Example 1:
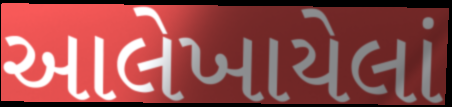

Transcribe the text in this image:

આલેખાયેલાં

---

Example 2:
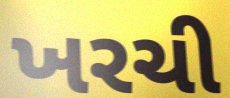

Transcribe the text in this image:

ખરચી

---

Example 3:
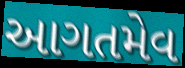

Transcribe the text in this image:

આગતમેવ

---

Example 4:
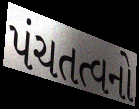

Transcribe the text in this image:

પંચતત્વનો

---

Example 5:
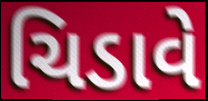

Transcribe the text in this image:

ચિડાવે